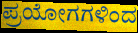
ಪ್ರಯೋಗಗಳಿಂದ